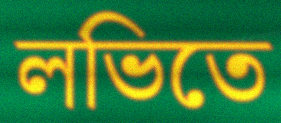
লভিতে